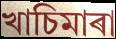
খাচিমাৰা